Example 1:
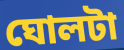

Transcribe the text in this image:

ঘোলটা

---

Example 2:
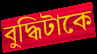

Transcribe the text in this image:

বুদ্ধিটাকে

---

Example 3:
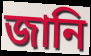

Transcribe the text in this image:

জানি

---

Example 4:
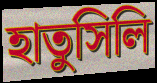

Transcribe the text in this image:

হাতুসিলি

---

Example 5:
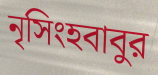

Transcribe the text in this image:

নৃসিংহবাবুর